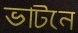
ভাটনে